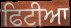
ਫਿਟੀਆ